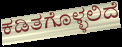
ಕಡಿತಗೊಳ್ಳಲಿದೆ